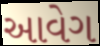
આવેગ